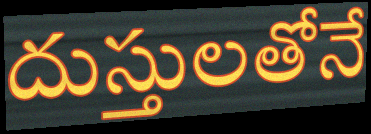
దుస్తులతోనే